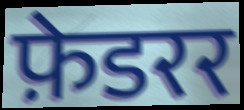
फ़ेडरर